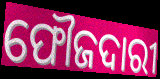
ଫୌଜଦାରୀ